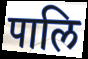
पालि